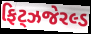
ફિટ્ઝજેરલ્ડ